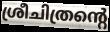
ശ്രീചിത്രന്റെ